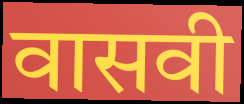
वासवी